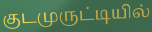
குடமுருட்டியில்